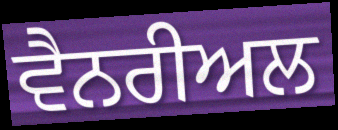
ਵੈਨਰੀਅਲ